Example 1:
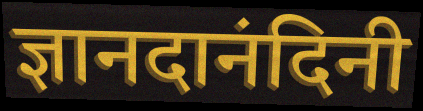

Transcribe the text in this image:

ज्ञानदानंदिनी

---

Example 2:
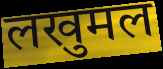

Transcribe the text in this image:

लखुमल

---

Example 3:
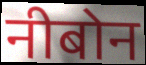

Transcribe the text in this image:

नीबोन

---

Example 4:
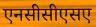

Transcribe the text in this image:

एनसीसीएसए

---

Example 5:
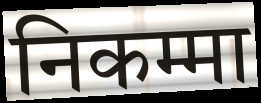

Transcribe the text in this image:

निकम्मा